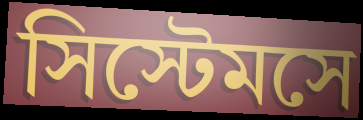
সিস্টেমসে